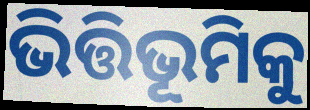
ଭିତ୍ତିଭୂମିକୁ